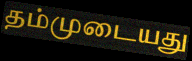
தம்முடையது